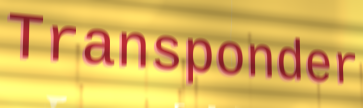
Transponder